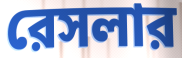
রেসলার